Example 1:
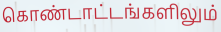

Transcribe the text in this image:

கொண்டாட்டங்களிலும்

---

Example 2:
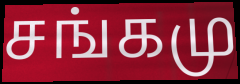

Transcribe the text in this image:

சங்கமு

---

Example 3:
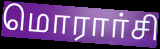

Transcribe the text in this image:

மொரார்சி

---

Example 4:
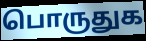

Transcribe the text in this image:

பொருதுக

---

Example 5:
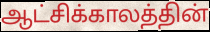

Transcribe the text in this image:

ஆட்சிக்காலத்தின்